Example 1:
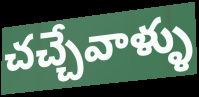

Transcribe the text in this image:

చచ్చేవాళ్ళు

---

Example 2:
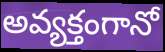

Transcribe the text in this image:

అవ్యక్తంగానో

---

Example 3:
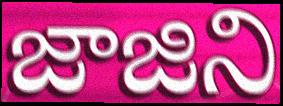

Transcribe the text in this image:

జాజిని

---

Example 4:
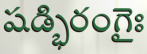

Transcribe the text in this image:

షడ్భిరంగైః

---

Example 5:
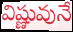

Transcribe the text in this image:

విష్ణువునే